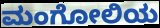
ಮಂಗೋಲಿಯ